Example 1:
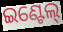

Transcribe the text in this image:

ଇଣ୍ଟେଲ୍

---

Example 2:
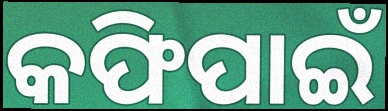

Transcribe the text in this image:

କଫିପାଇଁ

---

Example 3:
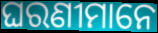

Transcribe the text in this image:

ଘରଣୀମାନେ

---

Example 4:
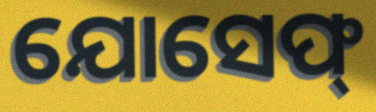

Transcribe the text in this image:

ଯୋସେଫ୍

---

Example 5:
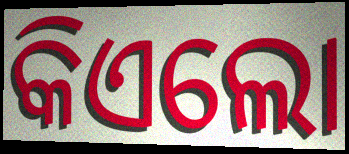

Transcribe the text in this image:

କିଏଲୋ